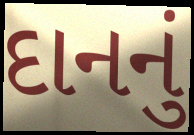
દાનનું